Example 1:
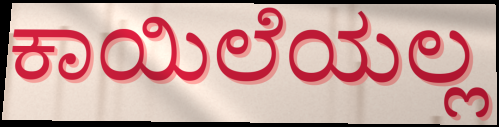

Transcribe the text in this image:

ಕಾಯಿಲೆಯಲ್ಲ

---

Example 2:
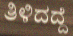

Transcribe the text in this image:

ತಿಳಿದದ್ದೆ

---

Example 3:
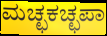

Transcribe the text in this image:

ಮಚ್ಛಕಚ್ಛಪಾ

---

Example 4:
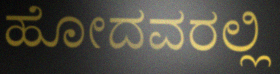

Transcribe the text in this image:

ಹೋದವರಲ್ಲಿ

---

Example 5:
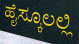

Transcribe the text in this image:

ಹೈಸ್ಕೂಲಲ್ಲಿ